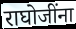
राघोजींना